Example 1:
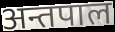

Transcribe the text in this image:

अन्तपाल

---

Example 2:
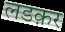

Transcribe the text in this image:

लडक़र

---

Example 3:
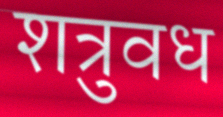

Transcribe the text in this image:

शत्रुवध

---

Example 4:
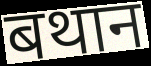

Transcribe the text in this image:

बथान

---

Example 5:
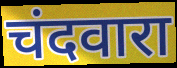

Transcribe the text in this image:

चंदवारा